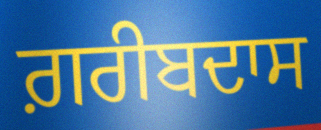
ਗ਼ਰੀਬਦਾਸ